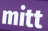
mitt